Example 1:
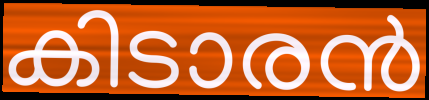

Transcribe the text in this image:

കിടാരൻ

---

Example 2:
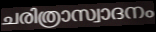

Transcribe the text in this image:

ചരിത്രാസ്വാദനം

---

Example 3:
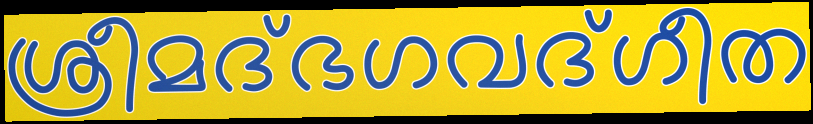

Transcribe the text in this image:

ശ്രീമദ്ഭഗവദ്ഗീത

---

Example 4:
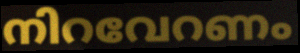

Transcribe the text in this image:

നിറവേറണം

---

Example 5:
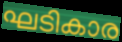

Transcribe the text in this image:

ഘടികാര